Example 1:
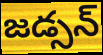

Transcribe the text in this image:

జడ్సన్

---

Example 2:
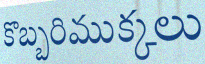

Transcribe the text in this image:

కొబ్బరిముక్కలు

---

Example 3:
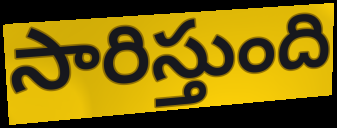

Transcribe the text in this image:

సారిస్తుంది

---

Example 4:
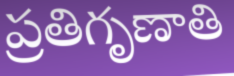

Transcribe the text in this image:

ప్రతిగృణాతి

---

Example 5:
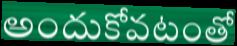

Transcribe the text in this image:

అందుకోవటంతో